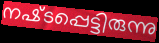
നഷ്‌ടപ്പെട്ടിരുന്നു